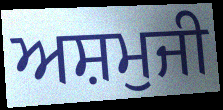
ਅਸ਼ਮੁਜੀ